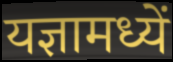
यज्ञामध्यें